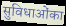
सुविधाओंका